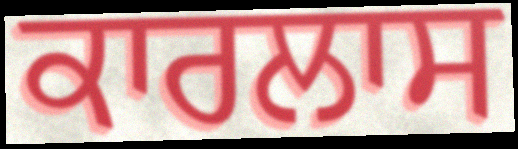
ਕਾਰਲਾਸ